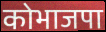
कोभाजपा